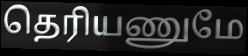
தெரியணுமே